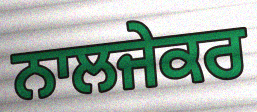
ਨਾਲਜੇਕਰ